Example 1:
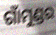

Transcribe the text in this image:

ଗାଁମୁଣ୍ଡର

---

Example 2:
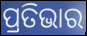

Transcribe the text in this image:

ପ୍ରତିଭାର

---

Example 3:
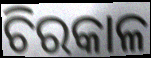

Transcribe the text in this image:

ଚିରକାଳ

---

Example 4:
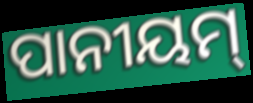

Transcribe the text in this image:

ପାନୀୟମ୍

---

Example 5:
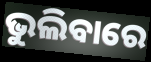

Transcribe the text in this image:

ଭୁଲିବାରେ